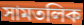
সামতলিক